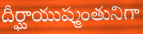
దీర్ఘాయుష్మంతునిగా